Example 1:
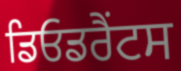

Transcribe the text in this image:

ਡਿਓਡਰੈਂਟਸ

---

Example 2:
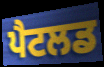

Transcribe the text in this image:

ਪੈਟਲਡ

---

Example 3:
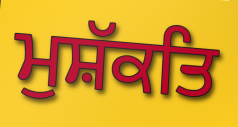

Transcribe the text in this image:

ਮੁਸ਼ੱਕਤਿ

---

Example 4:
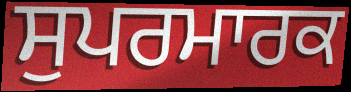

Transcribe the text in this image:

ਸੁਪਰਮਾਰਕ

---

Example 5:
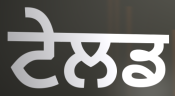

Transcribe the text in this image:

ਟੇਲਡ